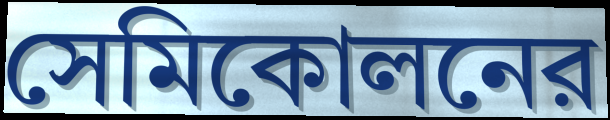
সেমিকোলনের